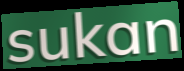
sukan